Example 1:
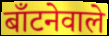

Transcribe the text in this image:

बाँटनेवाले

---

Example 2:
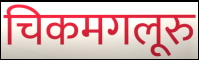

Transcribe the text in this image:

चिकमगलूरु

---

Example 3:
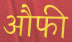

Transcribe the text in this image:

औफी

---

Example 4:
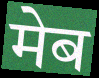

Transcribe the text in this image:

मेब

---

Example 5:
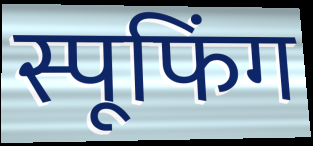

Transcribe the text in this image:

स्पूफिंग